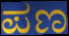
ಪಣ